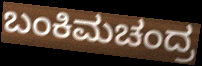
ಬಂಕಿಮಚಂದ್ರ